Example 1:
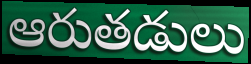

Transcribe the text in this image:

ఆరుతడులు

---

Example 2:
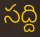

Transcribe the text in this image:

సద్ది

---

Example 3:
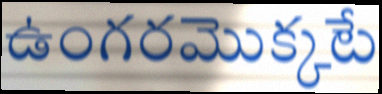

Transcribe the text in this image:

ఉంగరమొక్కటే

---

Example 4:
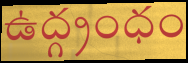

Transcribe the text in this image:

ఉద్గ్రంధం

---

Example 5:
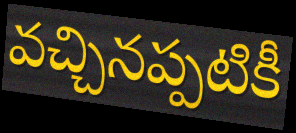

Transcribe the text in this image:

వచ్చినప్పటికీ